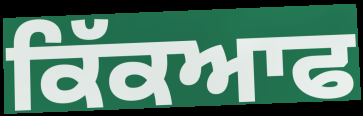
ਕਿੱਕਆਫ